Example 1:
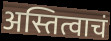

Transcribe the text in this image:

अस्तित्वाचं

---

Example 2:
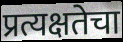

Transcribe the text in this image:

प्रत्यक्षतेचा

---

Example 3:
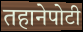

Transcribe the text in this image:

तहानेपोटी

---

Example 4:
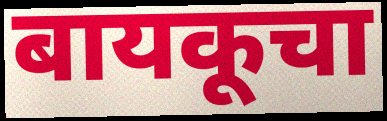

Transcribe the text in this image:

बायकूचा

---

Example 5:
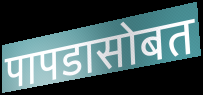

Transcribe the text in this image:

पापडासोबत